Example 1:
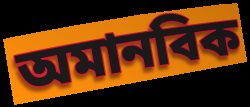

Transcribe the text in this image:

অমানবিক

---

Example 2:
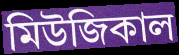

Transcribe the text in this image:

মিউজিকাল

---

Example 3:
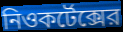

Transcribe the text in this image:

নিওকর্টেক্সের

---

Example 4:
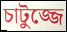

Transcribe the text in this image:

চাটুজ্জে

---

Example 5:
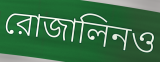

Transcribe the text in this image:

রোজালিনও